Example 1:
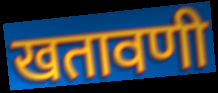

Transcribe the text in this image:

खतावणी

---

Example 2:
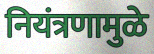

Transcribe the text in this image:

नियंत्रणामुळे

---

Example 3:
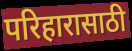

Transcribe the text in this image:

परिहारासाठी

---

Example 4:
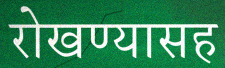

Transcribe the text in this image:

रोखण्यासह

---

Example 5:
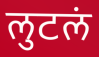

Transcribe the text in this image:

लुटलं